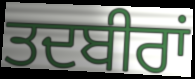
ਤਦਬੀਰਾਂ